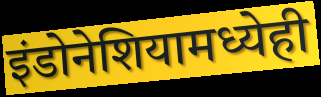
इंडोनेशियामध्येही